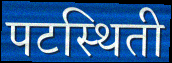
पटस्थिती